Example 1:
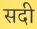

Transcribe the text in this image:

सदी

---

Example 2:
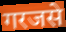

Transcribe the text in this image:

गरजसे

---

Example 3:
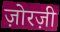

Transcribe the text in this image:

ज़ोरज़ी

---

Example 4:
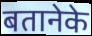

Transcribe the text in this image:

बतानेके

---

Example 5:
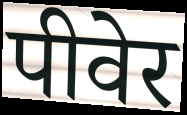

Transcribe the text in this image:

पीवेर